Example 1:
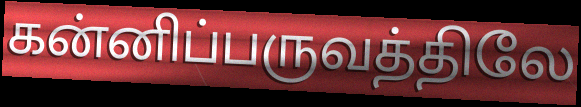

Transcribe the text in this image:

கன்னிப்பருவத்திலே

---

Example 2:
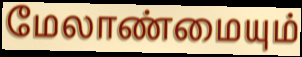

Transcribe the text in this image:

மேலாண்மையும்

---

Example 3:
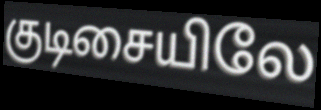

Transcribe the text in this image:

குடிசையிலே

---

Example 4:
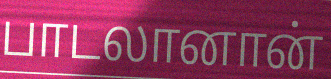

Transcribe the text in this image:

பாடலானான்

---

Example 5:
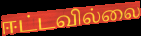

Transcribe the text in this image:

ஈட்டவில்லை